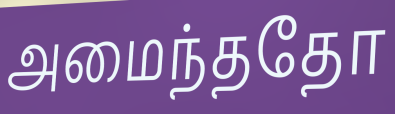
அமைந்ததோ